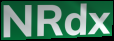
NRdx